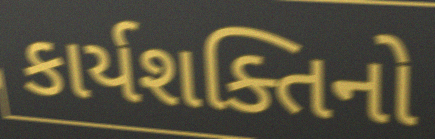
કાર્યશક્તિનો